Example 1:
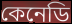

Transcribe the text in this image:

কেনেডি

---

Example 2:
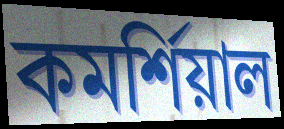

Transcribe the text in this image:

কমর্শিয়াল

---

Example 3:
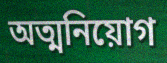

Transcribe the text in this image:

অত্মনিয়োগ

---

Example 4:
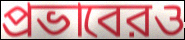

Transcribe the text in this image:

প্রভাবেরও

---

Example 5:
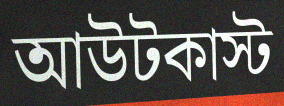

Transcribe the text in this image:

আউটকাস্ট